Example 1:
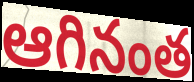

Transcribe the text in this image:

ఆగినంత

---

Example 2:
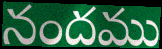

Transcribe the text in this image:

నందము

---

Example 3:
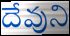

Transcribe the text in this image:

దేవుని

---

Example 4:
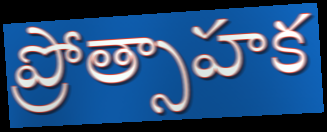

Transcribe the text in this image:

ప్రోత్సాహక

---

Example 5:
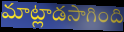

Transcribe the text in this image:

మాట్లాడసాగింది